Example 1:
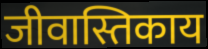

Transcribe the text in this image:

जीवास्तिकाय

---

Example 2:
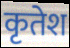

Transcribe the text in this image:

कृतेश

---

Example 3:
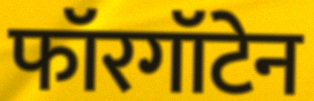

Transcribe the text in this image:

फॉरगॉटेन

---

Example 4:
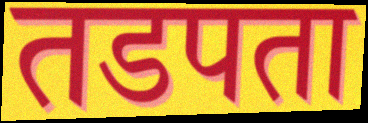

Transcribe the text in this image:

तडपता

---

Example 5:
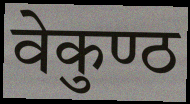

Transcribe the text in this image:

वेकुण्ठ